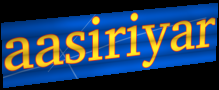
aasiriyar